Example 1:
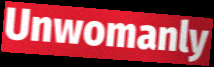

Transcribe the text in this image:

Unwomanly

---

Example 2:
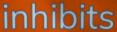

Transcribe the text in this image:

inhibits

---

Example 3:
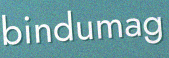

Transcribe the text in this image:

bindumag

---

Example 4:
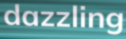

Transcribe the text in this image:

dazzling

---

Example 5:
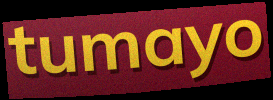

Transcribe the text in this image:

tumayo